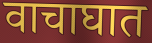
वाचाघात